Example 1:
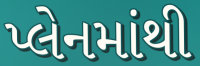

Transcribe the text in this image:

પ્લેનમાંથી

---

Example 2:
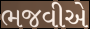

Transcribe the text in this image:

ભજવીએ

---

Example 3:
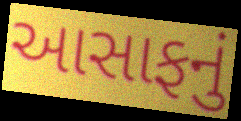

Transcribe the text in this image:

આસાફનું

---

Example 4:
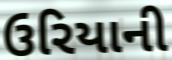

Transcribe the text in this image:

ઉરિયાની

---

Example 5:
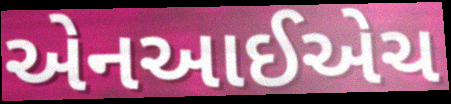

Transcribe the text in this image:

એનઆઈએચ